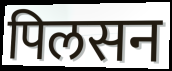
पिलसन